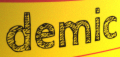
demic